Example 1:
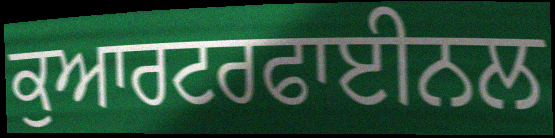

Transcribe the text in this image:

ਕੁਆਰਟਰਫਾਈਨਲ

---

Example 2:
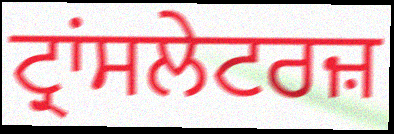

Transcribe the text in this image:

ਟ੍ਰਾਂਸਲੇਟਰਜ਼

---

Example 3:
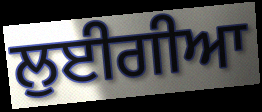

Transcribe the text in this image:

ਲੁਈਗੀਆ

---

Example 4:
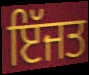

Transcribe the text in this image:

ਇੱਜਤ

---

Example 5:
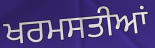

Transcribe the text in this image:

ਖਰਮਸਤੀਆਂ